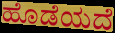
ಹೊಡೆಯದೆ